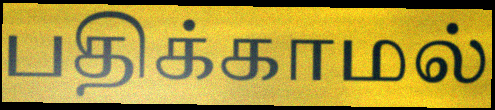
பதிக்காமல்